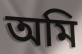
অমি